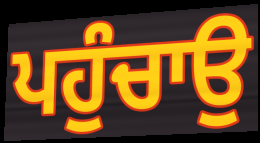
ਪਹੁੰਚਾਉ